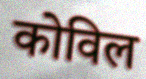
कोविल